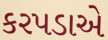
કરપડાએ